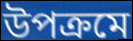
উপক্রমে